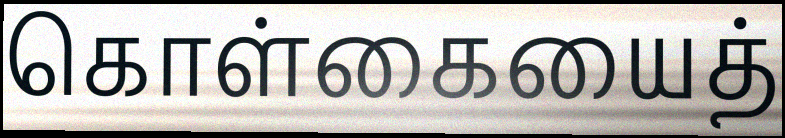
கொள்கையைத்